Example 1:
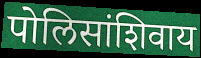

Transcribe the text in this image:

पोलिसांशिवाय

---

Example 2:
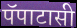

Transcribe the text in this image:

पॅपाटासी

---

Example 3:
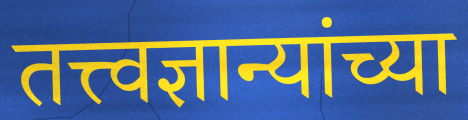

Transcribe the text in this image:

तत्त्वज्ञान्यांच्या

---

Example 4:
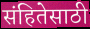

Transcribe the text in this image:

संहितेसाठी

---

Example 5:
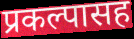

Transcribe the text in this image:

प्रकल्पासह